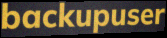
backupuser